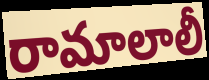
రామాలాలీ